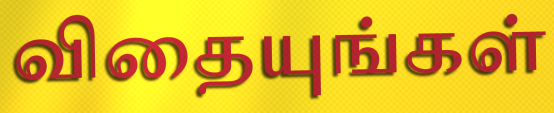
விதையுங்கள்